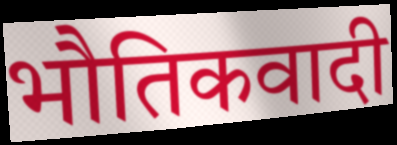
भौतिकवादी